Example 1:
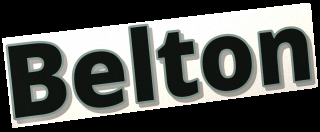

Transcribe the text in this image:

Belton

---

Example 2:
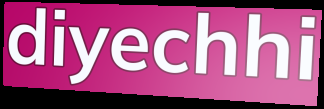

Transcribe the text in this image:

diyechhi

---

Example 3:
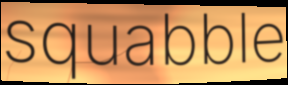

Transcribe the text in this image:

squabble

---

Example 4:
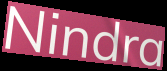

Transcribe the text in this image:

Nindra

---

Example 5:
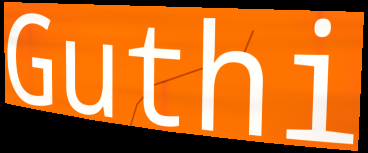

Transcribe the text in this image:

Guthi